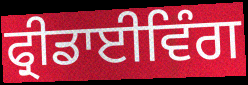
ਫ੍ਰੀਡਾਈਵਿੰਗ